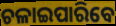
ଚଳାଇପାରିବେ